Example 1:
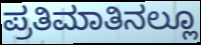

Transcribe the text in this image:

ಪ್ರತಿಮಾತಿನಲ್ಲೂ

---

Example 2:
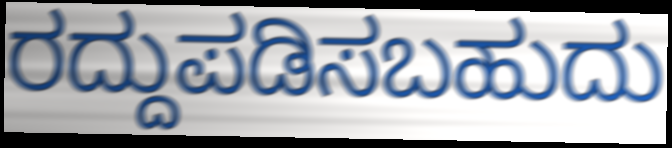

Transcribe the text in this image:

ರದ್ದುಪಡಿಸಬಹುದು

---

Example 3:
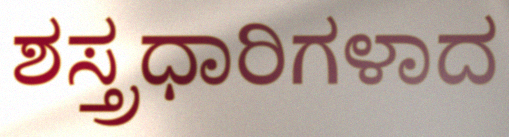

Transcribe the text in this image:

ಶಸ್ತ್ರಧಾರಿಗಳಾದ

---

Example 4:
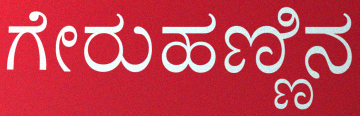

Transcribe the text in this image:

ಗೇರುಹಣ್ಣಿನ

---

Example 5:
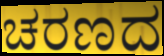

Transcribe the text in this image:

ಚರಣದ